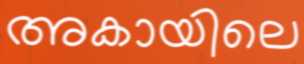
അകായിലെ